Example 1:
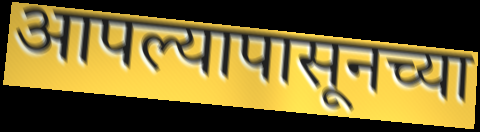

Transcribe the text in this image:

आपल्यापासूनच्या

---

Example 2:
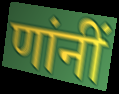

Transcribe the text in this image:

णांनीं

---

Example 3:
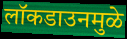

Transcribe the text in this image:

लॉकडाउनमुळे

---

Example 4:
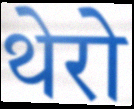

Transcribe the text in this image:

थेरो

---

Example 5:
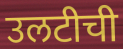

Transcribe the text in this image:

उलटीची